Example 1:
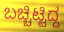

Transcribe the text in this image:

ಬಚ್ಚಿಟ್ಟಿದ್ದ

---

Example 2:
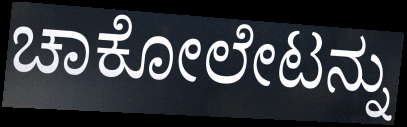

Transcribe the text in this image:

ಚಾಕೋಲೇಟನ್ನು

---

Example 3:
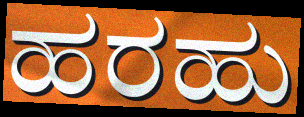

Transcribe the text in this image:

ಹರಹು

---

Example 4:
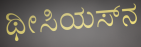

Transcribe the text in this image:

ಥೀಸಿಯಸ್‌ನ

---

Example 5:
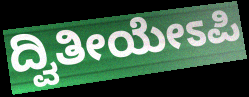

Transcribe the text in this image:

ದ್ವಿತೀಯೇಽಪಿ